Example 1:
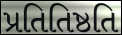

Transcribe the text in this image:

પ્રતિતિષ્ઠતિ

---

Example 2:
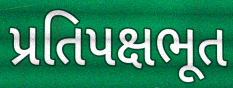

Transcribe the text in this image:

પ્રતિપક્ષભૂત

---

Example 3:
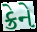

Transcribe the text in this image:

ક્રેને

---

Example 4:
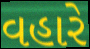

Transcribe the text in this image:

વહારે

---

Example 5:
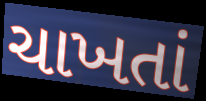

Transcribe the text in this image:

ચાખતાં